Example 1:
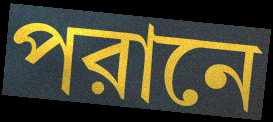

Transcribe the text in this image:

পরানে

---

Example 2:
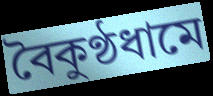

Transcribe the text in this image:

বৈকুণ্ঠধামে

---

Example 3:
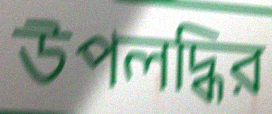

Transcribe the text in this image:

উপলদ্ধির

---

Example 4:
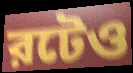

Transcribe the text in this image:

রটেও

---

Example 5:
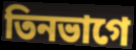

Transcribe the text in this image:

তিনভাগে